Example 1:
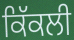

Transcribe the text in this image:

ਕਿੱਕਲੀ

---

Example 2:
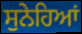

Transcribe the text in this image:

ਸੁਨੇਹਿਆਂ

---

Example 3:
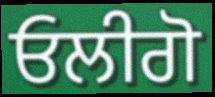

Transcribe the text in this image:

ਓਲੀਗੋ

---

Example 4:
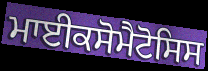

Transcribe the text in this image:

ਮਾਈਕਸੋਮੈਟੋਸਿਸ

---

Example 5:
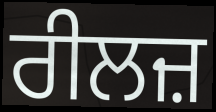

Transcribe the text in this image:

ਰੀਲਜ਼